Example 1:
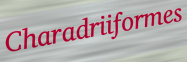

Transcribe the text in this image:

Charadriiformes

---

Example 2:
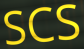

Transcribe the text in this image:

SCS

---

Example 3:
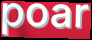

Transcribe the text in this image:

poar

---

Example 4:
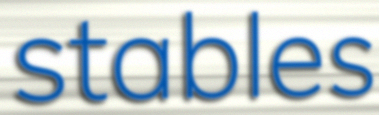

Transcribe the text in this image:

stables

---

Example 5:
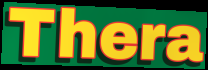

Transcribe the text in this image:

Thera